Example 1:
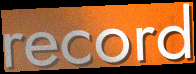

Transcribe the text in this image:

record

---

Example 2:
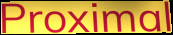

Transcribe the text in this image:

Proximal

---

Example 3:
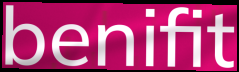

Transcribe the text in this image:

benifit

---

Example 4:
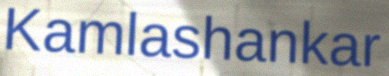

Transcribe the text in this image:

Kamlashankar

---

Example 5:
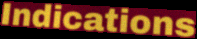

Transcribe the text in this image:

Indications